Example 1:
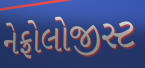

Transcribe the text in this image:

નેફ્રોલોજીસ્ટ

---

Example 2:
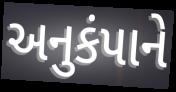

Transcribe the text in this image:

અનુકંપાને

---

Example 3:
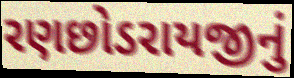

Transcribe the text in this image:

રણછોડરાયજીનું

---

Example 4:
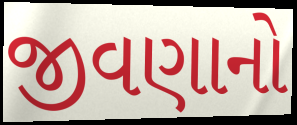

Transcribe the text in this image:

જીવણાનો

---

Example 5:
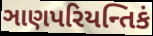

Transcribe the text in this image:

ઞાણપરિયન્તિકં